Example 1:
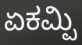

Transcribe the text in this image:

ಏಕಮ್ಪಿ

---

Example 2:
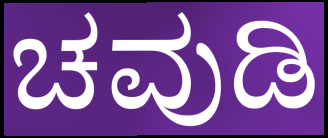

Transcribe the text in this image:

ಚವುಡಿ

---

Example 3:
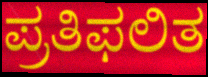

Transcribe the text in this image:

ಪ್ರತಿಫಲಿತ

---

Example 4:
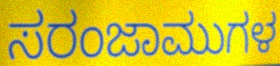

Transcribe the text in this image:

ಸರಂಜಾಮುಗಳ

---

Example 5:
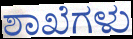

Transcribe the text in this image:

ಶಾಖೆಗಳು